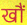
खौं